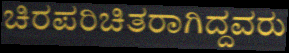
ಚಿರಪರಿಚಿತರಾಗಿದ್ದವರು